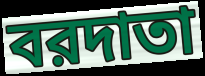
বরদাতা